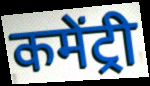
कमेंट्री